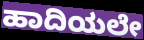
ಹಾದಿಯಲೇ